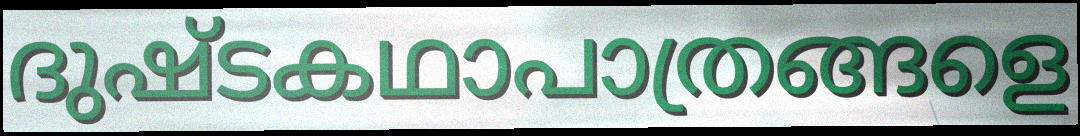
ദുഷ്ടകഥാപാത്രങ്ങളെ